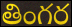
తింగర